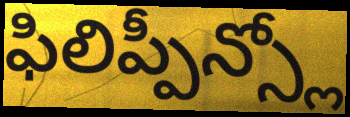
ఫిలిప్పీన్స్లో